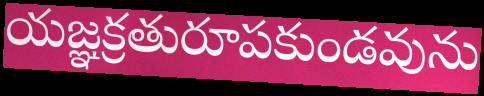
యజ్ఞక్రతురూపకుండవును